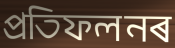
প্ৰতিফলনৰ